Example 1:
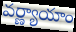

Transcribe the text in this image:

వర్ణ్యాయాం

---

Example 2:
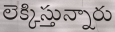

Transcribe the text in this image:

లెక్కిస్తున్నారు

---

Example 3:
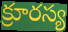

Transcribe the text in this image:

క్రూరస్య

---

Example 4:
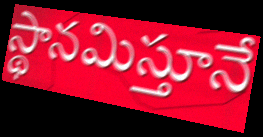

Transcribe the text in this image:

స్థానమిస్తూనే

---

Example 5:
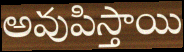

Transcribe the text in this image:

అవుపిస్తాయి